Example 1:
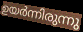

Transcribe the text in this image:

ഉയർന്നിരുന്നു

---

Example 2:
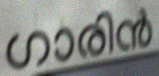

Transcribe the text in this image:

ഗാരിൻ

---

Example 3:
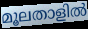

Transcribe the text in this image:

മൂലതാളിൽ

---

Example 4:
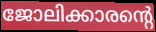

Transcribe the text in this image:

ജോലിക്കാരന്റെ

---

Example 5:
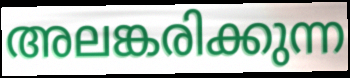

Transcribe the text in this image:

അലങ്കരിക്കുന്ന